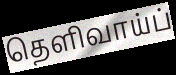
தெளிவாய்ப்